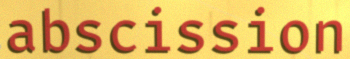
abscission